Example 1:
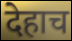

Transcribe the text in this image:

देहाच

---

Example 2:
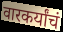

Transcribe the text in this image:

वारकर्यांचं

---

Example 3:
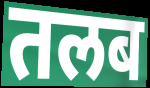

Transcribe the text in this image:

तलब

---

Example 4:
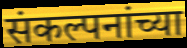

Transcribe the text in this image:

संकल्पनांच्या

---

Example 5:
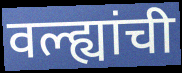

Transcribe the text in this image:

वल्ह्यांची